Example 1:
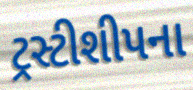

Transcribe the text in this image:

ટ્રસ્ટીશીપના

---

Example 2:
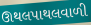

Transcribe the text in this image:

ઊથલપાથલવાળી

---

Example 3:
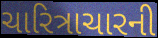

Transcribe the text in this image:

ચારિત્રાચારની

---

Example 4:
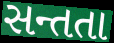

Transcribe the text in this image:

સન્તતા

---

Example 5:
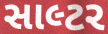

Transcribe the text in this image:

સાલ્ટર